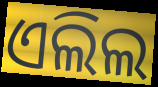
ଏଲିଲ